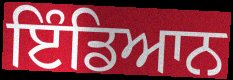
ਇੰਡਿਆਨ